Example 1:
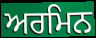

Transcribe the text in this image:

ਅਰਮਿਨ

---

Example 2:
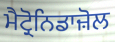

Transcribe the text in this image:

ਮੈਟ੍ਰੋਨਿਡਾਜ਼ੋਲ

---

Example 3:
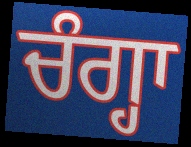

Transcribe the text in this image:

ਚੰਗ੍ਹਾ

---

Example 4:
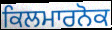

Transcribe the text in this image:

ਕਿਲਮਾਰਨੋਕ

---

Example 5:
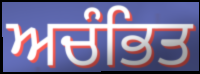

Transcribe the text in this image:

ਅਚੰਭਿਤ